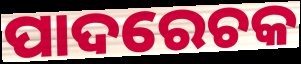
ପାଦରେଚକ